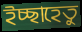
ইচ্ছাহেতু